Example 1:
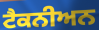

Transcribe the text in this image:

ਟੈਕਨੀਅਨ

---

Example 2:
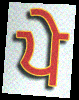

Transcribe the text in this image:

ਪੇ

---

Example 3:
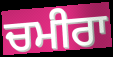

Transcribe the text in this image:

ਚਮੀਰਾ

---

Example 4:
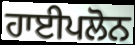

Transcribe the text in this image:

ਹਾਈਪਲੋਨ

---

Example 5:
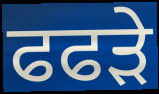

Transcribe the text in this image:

ਫਫੜੇ